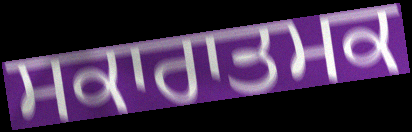
ਸਕਾਰਾਤਮਕ